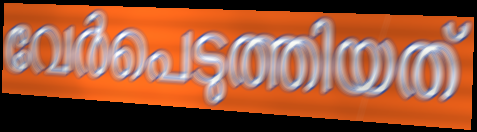
വേർപെടുത്തിയത്